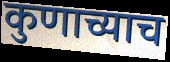
कुणाच्याच